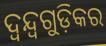
ଦ୍ୱନ୍ଦ୍ୱଗୁଡ଼ିକର